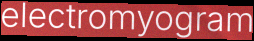
electromyogram